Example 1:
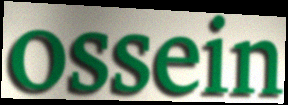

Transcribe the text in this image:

ossein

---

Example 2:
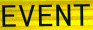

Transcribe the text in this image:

EVENT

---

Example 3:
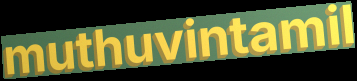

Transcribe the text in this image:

muthuvintamil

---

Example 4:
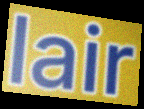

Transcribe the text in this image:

lair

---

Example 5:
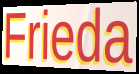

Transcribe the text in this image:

Frieda